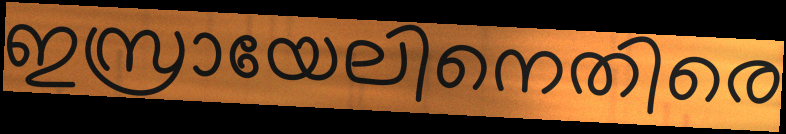
ഇസ്രായേലിനെതിരെ